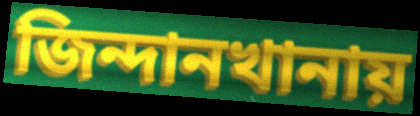
জিন্দানখানায়